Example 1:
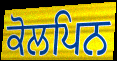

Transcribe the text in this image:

ਕੋਲਪਿਨ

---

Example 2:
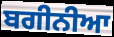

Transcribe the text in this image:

ਬਗੀਨੀਆ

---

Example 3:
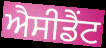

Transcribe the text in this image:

ਐਸੀਡੈਂਟ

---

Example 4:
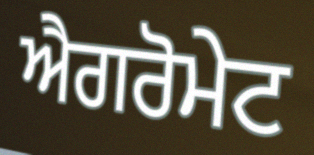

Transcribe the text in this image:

ਐਗਰੋਮੇਟ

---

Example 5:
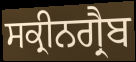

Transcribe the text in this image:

ਸਕ੍ਰੀਨਗ੍ਰੈਬ